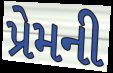
પ્રેમની